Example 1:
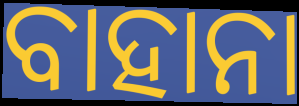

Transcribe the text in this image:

ବାହାନା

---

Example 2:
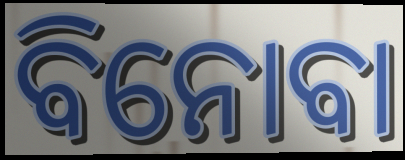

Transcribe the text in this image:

ବିନୋବା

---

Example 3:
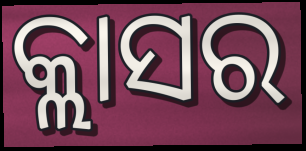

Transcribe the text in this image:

କ୍ଲାସର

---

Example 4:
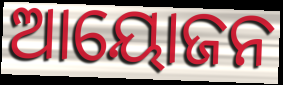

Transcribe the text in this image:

ଆୟୋଜନ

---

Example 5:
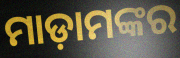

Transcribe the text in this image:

ମାଡ଼ାମଙ୍କର